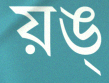
য়ঙ্